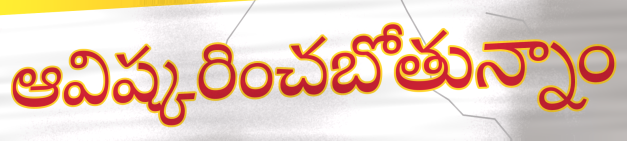
ఆవిష్కరించబోతున్నాం